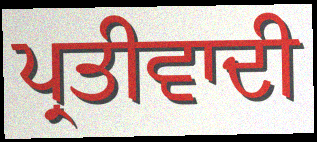
ਪ੍ਰਤੀਵਾਦੀ